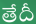
తేదీ